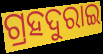
ଗ୍ରହଦୁରାଇ